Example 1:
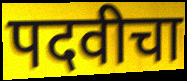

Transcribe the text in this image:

पदवीचा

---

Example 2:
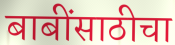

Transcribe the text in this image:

बाबींसाठीचा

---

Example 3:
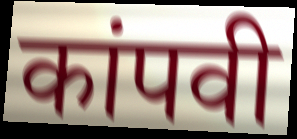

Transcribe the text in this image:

कांपवी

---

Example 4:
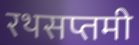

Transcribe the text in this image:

रथसप्तमी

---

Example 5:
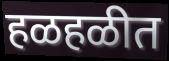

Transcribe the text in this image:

हळहळीत